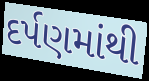
દર્પણમાંથી